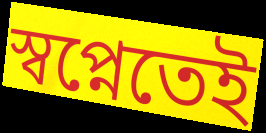
স্বপ্নেতেই